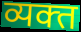
व्यक्‍त